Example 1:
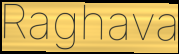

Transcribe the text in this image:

Raghava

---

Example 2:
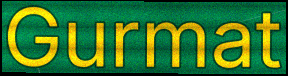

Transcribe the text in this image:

Gurmat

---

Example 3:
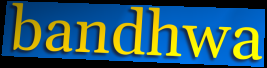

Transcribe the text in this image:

bandhwa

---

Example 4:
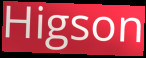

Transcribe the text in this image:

Higson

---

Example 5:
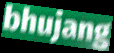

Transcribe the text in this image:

bhujang